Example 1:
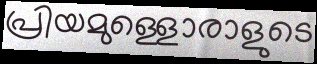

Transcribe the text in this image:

പ്രിയമുള്ളൊരാളുടെ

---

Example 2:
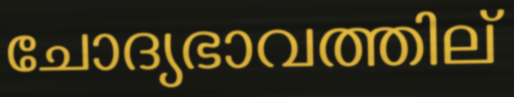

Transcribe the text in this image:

ചോദ്യഭാവത്തില്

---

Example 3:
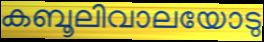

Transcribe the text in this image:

കബൂലിവാലയോടു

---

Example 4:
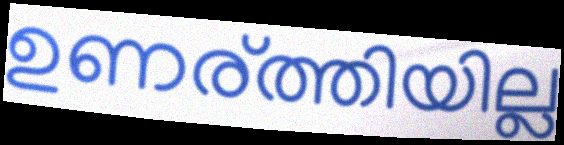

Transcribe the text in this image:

ഉണര്ത്തിയില്ല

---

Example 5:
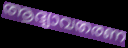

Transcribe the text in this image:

ആദ്യാവതരണ